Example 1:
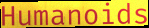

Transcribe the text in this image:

Humanoids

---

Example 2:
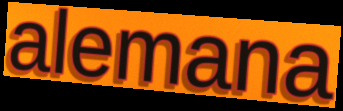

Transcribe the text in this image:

alemana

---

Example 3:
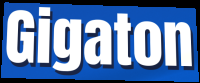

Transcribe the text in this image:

Gigaton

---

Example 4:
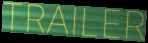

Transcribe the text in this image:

TRAILER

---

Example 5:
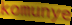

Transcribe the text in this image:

komunye